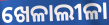
ଖେଳାଲୀଳା